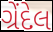
ગ્રેંદેલ